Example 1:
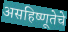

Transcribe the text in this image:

असहिष्णूतेचे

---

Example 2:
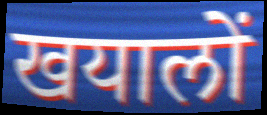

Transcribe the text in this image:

खयालों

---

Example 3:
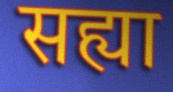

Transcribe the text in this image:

सह्या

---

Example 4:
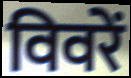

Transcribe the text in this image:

विवरें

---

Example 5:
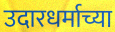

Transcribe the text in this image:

उदारधर्माच्या